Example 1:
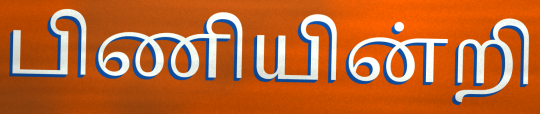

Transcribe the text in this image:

பிணியின்றி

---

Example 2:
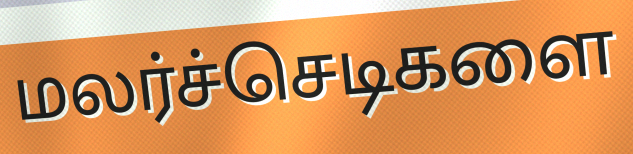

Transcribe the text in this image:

மலர்ச்செடிகளை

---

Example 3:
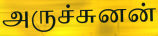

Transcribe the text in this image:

அருச்சுனன்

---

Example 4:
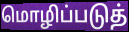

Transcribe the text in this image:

மொழிப்படுத்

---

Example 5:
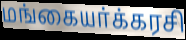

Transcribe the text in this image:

மங்கையர்க்கரசி